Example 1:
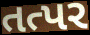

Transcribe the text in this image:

તત્પર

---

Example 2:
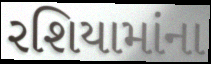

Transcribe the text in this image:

રશિયામાંના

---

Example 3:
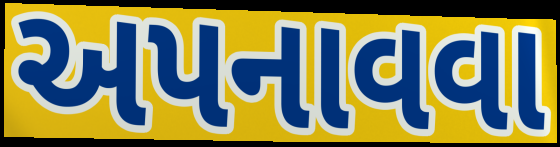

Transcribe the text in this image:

અપનાવવા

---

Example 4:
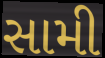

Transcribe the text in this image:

સામી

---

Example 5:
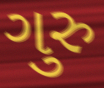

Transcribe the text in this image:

ગુરુ